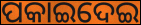
ପକାଇଦେଇ